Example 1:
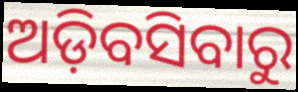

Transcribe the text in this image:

ଅଡ଼ିବସିବାରୁ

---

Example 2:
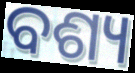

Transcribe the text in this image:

ବଶ୍ୟ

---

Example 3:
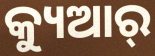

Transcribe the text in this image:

କ୍ୟୁଆର୍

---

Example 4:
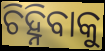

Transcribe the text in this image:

ଚିହ୍ନିବାକୁ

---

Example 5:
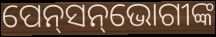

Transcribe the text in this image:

ପେନ୍‌ସନ୍‌ଭୋଗୀଙ୍କ